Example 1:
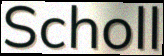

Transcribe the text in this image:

Scholl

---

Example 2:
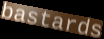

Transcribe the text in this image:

bastards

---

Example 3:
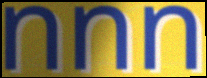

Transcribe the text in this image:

nnn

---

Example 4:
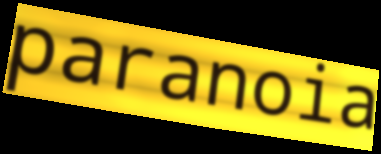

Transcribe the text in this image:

paranoia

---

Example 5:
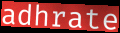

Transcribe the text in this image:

adhrate